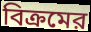
বিক্রমের